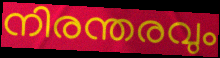
നിരന്തരവും